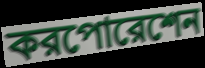
করপোরেশেন